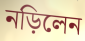
নড়িলেন